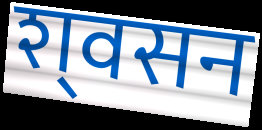
श्वसन